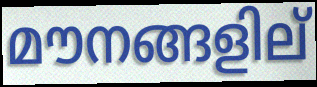
മൗനങ്ങളില്